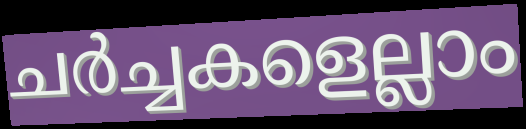
ചർച്ചകളെല്ലാം